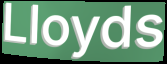
Lloyds